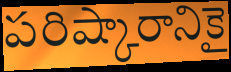
పరిష్కారానికై